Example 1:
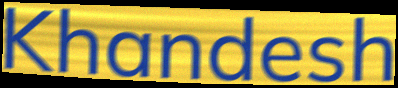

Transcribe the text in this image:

Khandesh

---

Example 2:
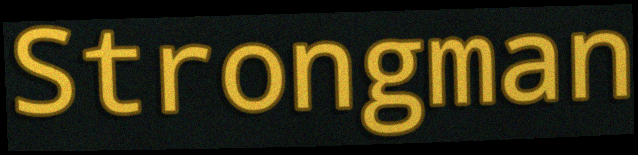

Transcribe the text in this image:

Strongman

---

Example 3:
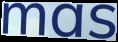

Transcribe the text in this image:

mas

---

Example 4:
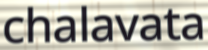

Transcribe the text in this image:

chalavata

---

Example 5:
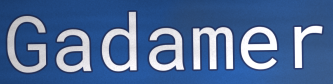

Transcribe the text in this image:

Gadamer